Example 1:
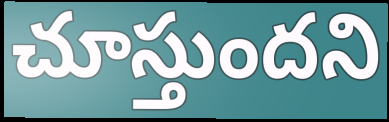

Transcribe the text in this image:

చూస్తుందని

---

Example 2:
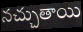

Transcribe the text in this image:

నచ్చుతాయి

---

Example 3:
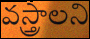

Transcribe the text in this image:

వస్త్రాలని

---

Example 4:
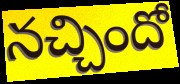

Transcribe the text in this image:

నచ్చిందో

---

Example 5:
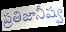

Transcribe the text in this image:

ప్రతిజానీష్వ